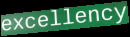
excellency